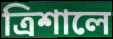
ত্রিশালে